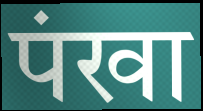
पंखा